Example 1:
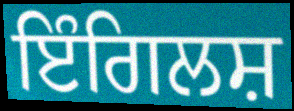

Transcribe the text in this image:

ਇੰਗਿਲਸ਼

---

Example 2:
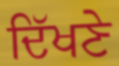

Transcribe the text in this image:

ਦਿੱਖਣੇ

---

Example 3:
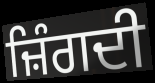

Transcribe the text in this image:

ਜ਼ਿੰਗਦੀ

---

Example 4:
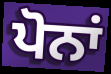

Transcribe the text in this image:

ਪੋਨਾਂ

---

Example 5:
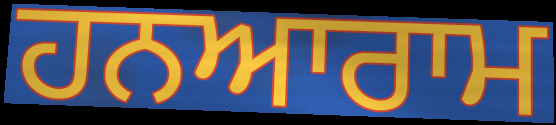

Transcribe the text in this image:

ਹਨਆਰਾਮ